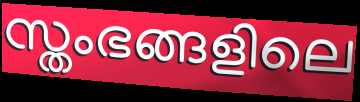
സ്തംഭങ്ങളിലെ